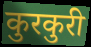
कुरकुरी